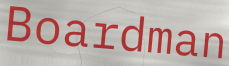
Boardman